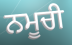
ਨਮੂਚੀ